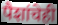
पैशांचेही